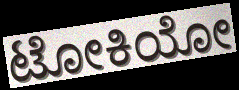
ಟೋಕಿಯೋ